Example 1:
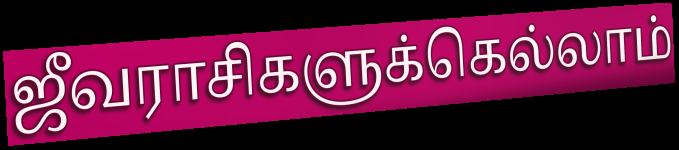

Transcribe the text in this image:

ஜீவராசிகளுக்கெல்லாம்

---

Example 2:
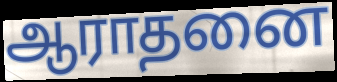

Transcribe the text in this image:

ஆராதனை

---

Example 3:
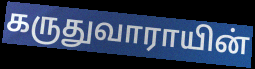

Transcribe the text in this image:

கருதுவாராயின்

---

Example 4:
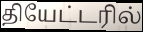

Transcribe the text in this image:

தியேட்டரில்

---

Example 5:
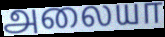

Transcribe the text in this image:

அலையா